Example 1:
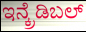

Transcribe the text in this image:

ಇನ್ಕ್ರೆಡಿಬಲ್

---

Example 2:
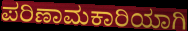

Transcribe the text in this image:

ಪರಿಣಾಮಕಾರಿಯಾಗಿ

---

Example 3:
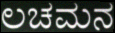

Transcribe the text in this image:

ಲಚಮನ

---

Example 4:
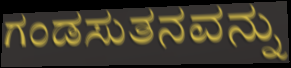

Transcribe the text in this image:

ಗಂಡಸುತನವನ್ನು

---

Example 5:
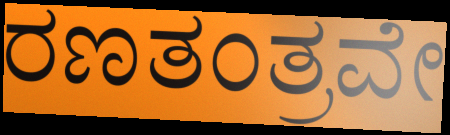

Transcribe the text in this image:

ರಣತಂತ್ರವೇ